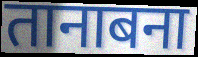
तानाबना